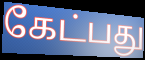
கேட்பது